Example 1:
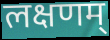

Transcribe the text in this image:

लक्षणम्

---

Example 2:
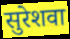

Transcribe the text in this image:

सुरेशवा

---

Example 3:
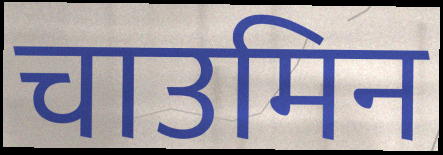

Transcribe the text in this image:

चाउमिन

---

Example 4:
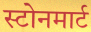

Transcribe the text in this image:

स्टोनमार्ट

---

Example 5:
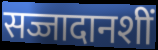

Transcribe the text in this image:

सज्जादानशीं